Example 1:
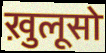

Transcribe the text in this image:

ख़ुलूसो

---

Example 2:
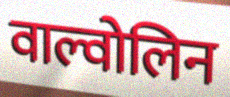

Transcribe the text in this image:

वाल्वोलिन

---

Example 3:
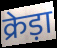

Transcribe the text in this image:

क्रेड़ा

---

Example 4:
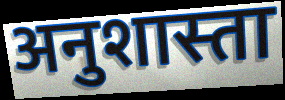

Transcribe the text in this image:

अनुशास्ता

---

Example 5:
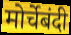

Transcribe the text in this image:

मोर्चेबंदी